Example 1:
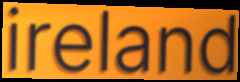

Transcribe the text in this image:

ireland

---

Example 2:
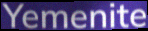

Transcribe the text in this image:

Yemenite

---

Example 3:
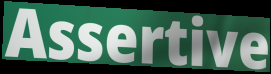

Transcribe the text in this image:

Assertive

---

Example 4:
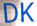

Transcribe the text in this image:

DK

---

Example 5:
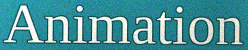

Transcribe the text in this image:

Animation